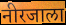
नीरजाला